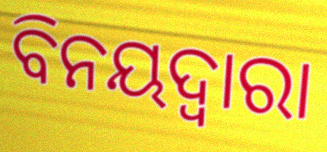
ବିନୟଦ୍ବାରା